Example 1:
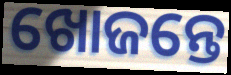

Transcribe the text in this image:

ଖୋଜନ୍ତେ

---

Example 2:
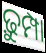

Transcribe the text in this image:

ଢ଼ୁମ୍ପା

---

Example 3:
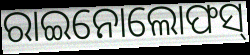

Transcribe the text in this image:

ରାଇନୋଲୋଫସ୍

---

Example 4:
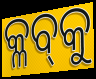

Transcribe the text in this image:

କ୍ଳବ୍‍କୁ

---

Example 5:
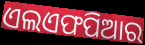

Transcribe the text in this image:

ଏଲଏଫପିଆର